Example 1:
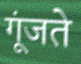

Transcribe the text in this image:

गूंजते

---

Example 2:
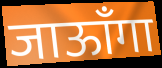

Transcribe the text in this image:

जाऊाँगा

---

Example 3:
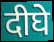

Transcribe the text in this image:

दीघे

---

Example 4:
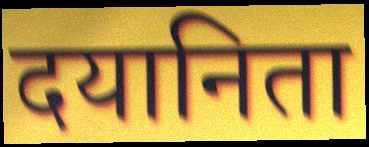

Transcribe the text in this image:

दयानिता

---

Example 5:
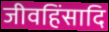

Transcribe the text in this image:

जीवहिंसादि